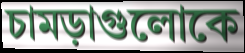
চামড়াগুলোকে